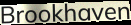
Brookhaven